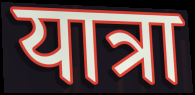
यात्रा